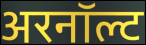
अरनॉल्ट